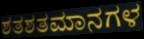
ಶತಶತಮಾನಗಳ